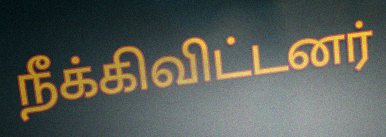
நீக்கிவிட்டனர்